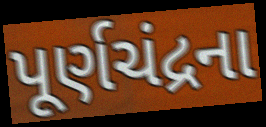
પૂર્ણચંદ્રના